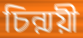
চিন্ময়ী